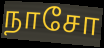
நாசோ